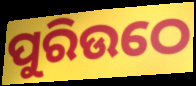
ପୁରିଉଠେ